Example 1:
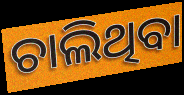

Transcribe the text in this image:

ଚାଲିଥିବା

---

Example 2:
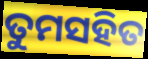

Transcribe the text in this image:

ତୁମସହିତ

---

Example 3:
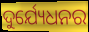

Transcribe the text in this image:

ଦୁର୍ଯ୍ୟେଧନର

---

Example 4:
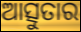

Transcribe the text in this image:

ଆତ୍ସୁତାର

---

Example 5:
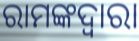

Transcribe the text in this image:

ରାମଙ୍କଦ୍ଵାରା